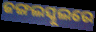
ଜଙ୍ଗଲସ୍କୁଲରେ